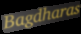
Bagdharas